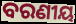
ବରଣୀୟ